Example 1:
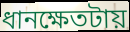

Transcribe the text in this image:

ধানক্ষেতটায়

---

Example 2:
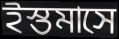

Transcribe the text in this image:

ইস্তমাসে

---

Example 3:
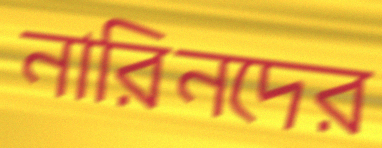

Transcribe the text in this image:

নারিনদের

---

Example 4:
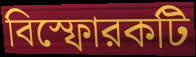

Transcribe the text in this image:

বিস্ফোরকটি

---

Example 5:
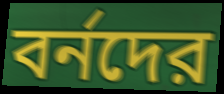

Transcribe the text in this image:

বর্নদের